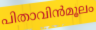
പിതാവിൻമൂലം